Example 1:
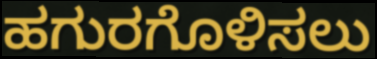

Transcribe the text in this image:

ಹಗುರಗೊಳಿಸಲು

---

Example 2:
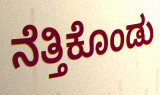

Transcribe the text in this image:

ನೆತ್ತಿಕೊಂಡು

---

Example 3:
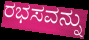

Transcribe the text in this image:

ರಭಸವನ್ನು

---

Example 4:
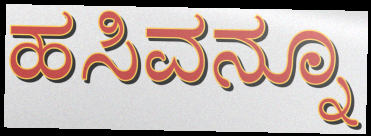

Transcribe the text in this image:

ಹಸಿವನ್ನೂ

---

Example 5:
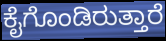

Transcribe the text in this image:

ಕೈಗೊಂಡಿರುತ್ತಾರೆ